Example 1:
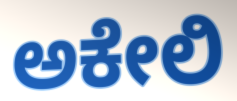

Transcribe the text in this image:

ಅಕೇಲಿ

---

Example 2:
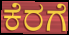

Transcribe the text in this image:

ಕೆರಗೆ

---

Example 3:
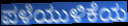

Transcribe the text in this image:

ಪಳೆಯುಳಿಕೆಯ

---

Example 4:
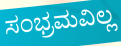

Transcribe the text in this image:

ಸಂಭ್ರಮವಿಲ್ಲ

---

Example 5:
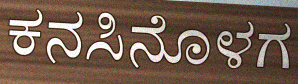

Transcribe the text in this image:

ಕನಸಿನೊಳಗ